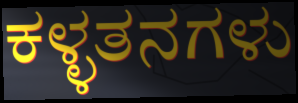
ಕಳ್ಳತನಗಳು